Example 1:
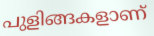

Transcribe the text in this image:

പുളിങ്ങകളാണ്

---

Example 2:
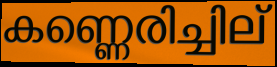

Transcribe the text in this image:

കണ്ണെരിച്ചില്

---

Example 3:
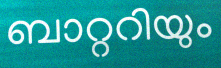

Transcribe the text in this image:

ബാറ്ററിയും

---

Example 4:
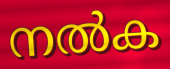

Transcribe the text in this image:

നൽക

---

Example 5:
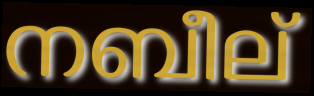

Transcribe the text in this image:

നബീല്